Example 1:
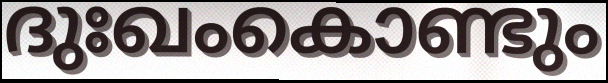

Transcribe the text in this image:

ദുഃഖംകൊണ്ടും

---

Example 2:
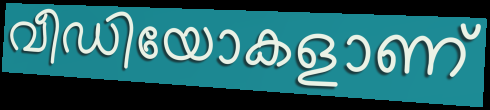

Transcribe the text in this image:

വീഡിയോകളാണ്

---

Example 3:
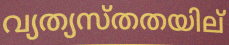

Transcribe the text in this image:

വ്യത്യസ്തതയില്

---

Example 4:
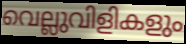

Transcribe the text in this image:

വെല്ലുവിളികളും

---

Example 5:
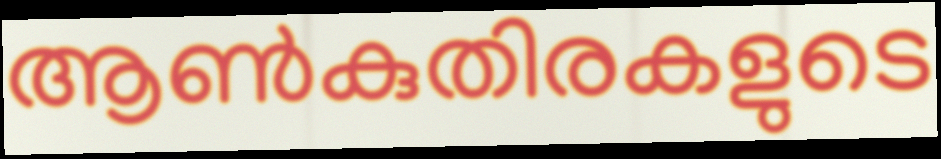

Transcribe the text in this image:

ആൺകുതിരകളുടെ